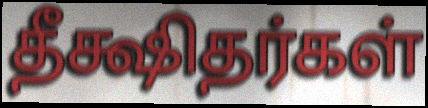
தீக்ஷிதர்கள்